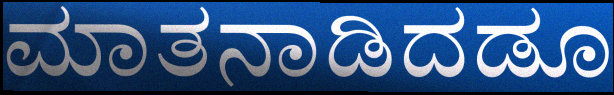
ಮಾತನಾಡಿದಡೂ